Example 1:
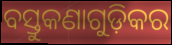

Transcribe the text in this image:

ବସ୍ତୁକଣାଗୁଡ଼ିକର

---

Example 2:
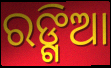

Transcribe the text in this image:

ରଙ୍ଗିଆ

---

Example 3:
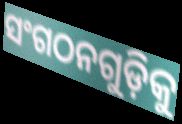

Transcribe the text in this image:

ସଂଗଠନଗୁଡ଼ିକୁ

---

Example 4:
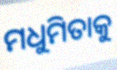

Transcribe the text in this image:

ମଧୁମିତାକୁ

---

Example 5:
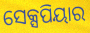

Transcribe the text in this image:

ସେକ୍ସପିୟାର